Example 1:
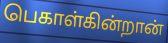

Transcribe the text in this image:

பெகாள்கின்றான்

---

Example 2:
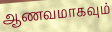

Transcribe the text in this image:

ஆணவமாகவும்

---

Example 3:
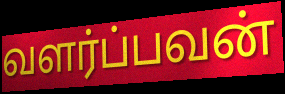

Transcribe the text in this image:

வளர்ப்பவன்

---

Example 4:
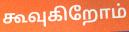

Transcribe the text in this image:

கூவுகிறோம்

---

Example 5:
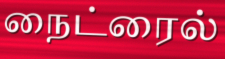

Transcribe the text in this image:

நைட்ரைல்